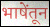
भाषेंतून